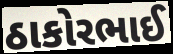
ઠાકોરભાઈ